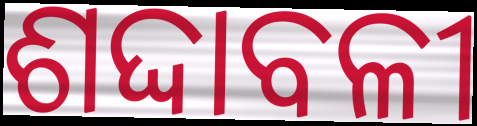
ଶଦ୍ଦାବଳୀ